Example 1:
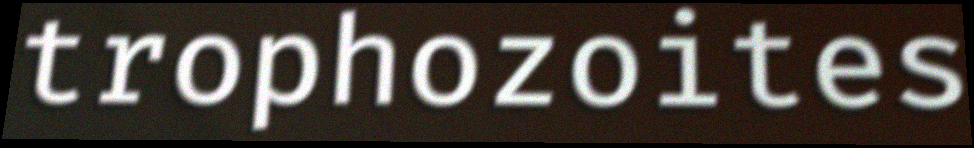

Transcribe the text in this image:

trophozoites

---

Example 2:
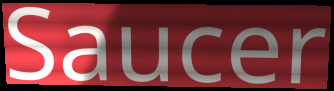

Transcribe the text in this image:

Saucer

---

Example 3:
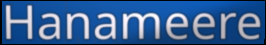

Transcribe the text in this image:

Hanameere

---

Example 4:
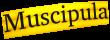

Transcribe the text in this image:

Muscipula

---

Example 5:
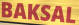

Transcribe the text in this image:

BAKSAL